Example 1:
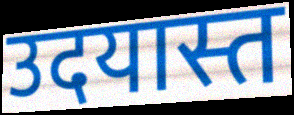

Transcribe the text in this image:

उदयास्त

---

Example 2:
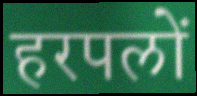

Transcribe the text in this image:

हरपलों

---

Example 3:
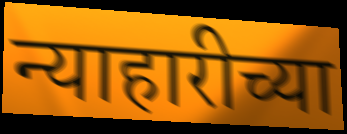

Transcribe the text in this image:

न्याहारीच्या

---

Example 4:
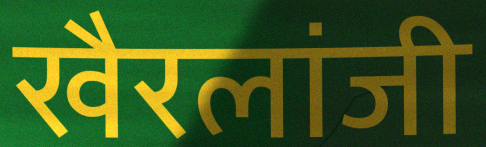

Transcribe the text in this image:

खैरलांजी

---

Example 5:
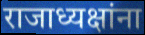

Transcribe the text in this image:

राजाध्यक्षांना